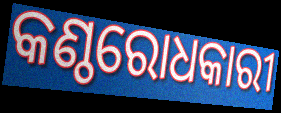
କଣ୍ଠରୋଧକାରୀ